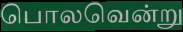
பொலவென்று